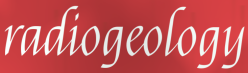
radiogeology